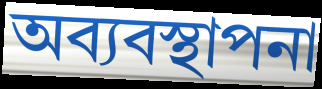
অব্যবস্থাপনা